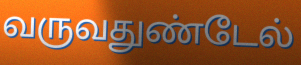
வருவதுண்டேல்